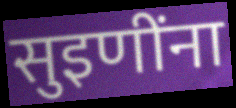
सुइणींना